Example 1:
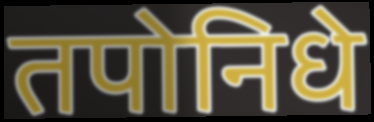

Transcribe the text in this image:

तपोनिधे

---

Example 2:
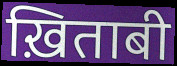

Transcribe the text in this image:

ख़िताबी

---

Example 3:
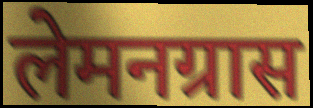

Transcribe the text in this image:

लेमनग्रास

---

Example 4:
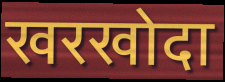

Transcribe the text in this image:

खरखोदा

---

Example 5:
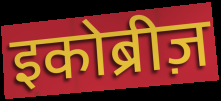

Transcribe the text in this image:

इकोब्रीज़